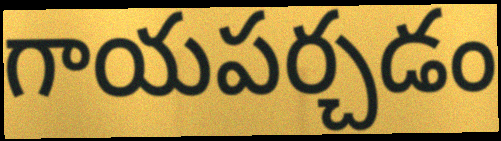
గాయపర్చడం